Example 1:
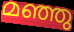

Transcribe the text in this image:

മഞ്ഞു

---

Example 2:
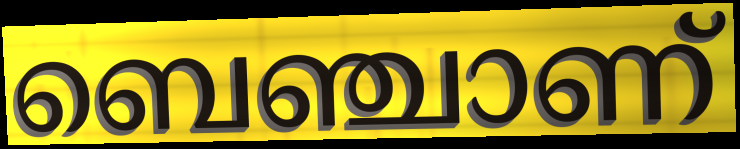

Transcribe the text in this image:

ബെഞ്ചാണ്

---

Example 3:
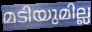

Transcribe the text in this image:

മടിയുമില്ല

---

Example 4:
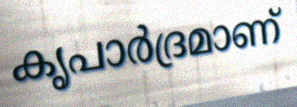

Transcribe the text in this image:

കൃപാർദ്രമാണ്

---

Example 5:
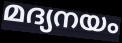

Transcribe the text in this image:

മദ്യനയം